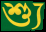
শ্যু